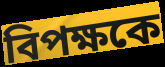
বিপক্ষকে